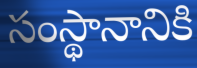
సంస్థానానికి